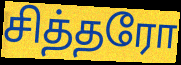
சித்தரோ